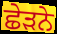
ਛੇੜਨੇ